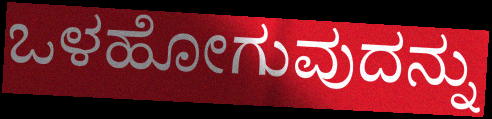
ಒಳಹೋಗುವುದನ್ನು